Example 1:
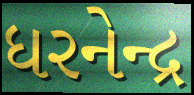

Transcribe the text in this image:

ધરનેન્દ્ર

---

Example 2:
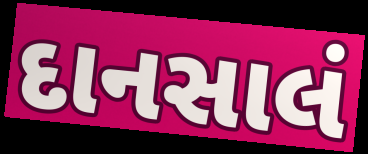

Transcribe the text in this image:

દાનસાલં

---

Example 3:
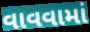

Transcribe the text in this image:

વાવવામાં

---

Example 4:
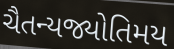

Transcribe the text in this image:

ચૈતન્યજ્યોતિમય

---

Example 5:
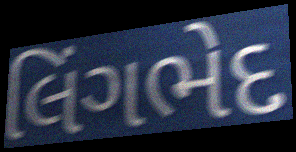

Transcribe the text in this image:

લિંગભેદ